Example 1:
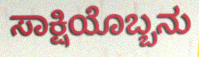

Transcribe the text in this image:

ಸಾಕ್ಷಿಯೊಬ್ಬನು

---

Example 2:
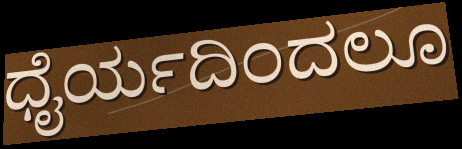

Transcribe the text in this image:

ಧೈರ್ಯದಿಂದಲೂ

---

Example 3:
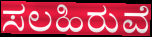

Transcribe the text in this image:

ಸಲಹಿರುವೆ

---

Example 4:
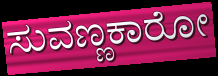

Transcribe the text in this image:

ಸುವಣ್ಣಕಾರೋ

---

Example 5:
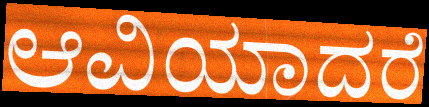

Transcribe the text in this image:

ಆವಿಯಾದರೆ